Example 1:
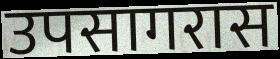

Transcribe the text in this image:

उपसागरास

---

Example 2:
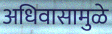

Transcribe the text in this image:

अधिवासामुळे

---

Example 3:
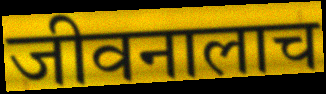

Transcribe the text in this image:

जीवनालाच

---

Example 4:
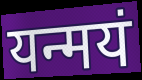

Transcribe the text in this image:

यन्मयं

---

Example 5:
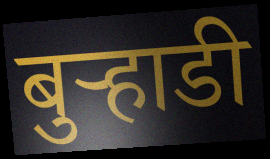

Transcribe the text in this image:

बुऱ्हाडी